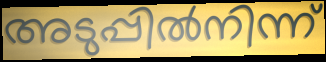
അടുപ്പിൽനിന്ന്